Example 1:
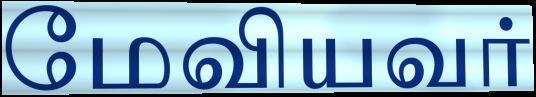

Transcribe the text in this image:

மேவியவர்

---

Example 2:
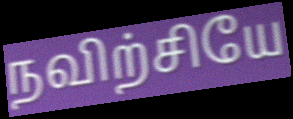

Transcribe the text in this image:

நவிற்சியே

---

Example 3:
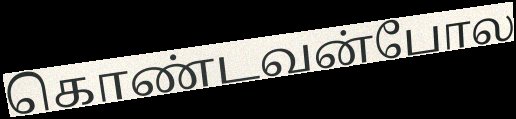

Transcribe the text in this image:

கொண்டவன்போல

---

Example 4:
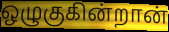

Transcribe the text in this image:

ஒழுகுகின்றான்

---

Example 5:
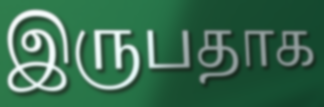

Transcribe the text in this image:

இருபதாக